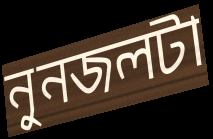
নুনজলটা